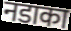
नडाका